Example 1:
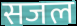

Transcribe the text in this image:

सजल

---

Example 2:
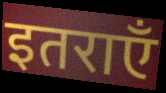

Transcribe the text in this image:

इतराएँ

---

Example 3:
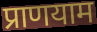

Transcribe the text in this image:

प्राणयाम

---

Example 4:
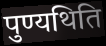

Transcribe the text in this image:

पुण्यथिति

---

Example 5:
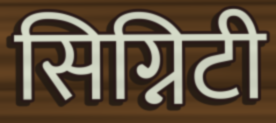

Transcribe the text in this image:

सिग्निटी